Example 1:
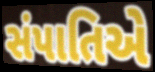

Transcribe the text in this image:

સંપાતિએ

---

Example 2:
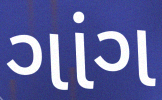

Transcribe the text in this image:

ગાંગ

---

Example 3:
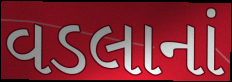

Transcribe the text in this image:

વડલાનાં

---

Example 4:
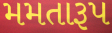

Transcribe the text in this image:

મમતારૂપ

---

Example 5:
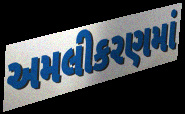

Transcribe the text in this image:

અમલીકરણમાં